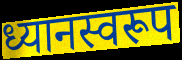
ध्यानस्वरूप